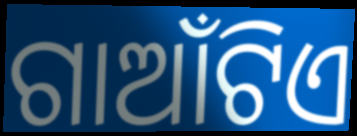
ଗାଆଁଟିଏ